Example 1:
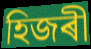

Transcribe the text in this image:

হিজৰী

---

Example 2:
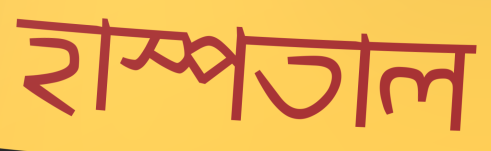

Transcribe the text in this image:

হাস্পতাল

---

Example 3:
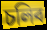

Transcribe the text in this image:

চলিব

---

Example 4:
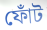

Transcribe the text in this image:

ফোঁট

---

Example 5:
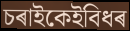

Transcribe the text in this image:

চৰাইকেইবিধৰ